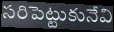
సరిపెట్టుకునేవి